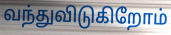
வந்துவிடுகிறோம்